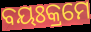
ବୟଃକ୍ରମେ